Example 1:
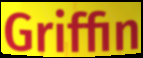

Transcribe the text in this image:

Griffin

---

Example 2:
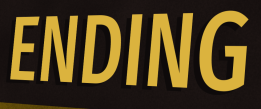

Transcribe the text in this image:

ENDING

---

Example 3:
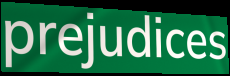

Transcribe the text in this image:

prejudices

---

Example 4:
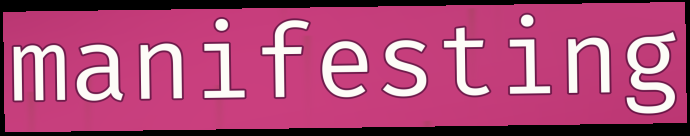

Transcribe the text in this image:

manifesting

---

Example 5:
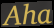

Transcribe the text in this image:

Aha